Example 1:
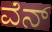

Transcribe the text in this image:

ವೆನ್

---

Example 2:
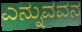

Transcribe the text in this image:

ಎನ್ನುವವನ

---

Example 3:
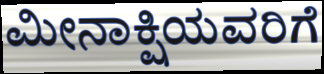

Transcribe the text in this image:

ಮೀನಾಕ್ಷಿಯವರಿಗೆ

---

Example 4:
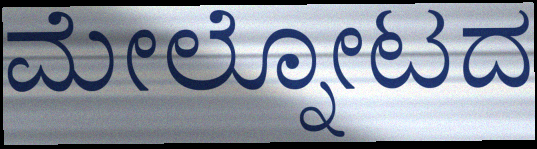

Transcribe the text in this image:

ಮೇಲ್ನೋಟದ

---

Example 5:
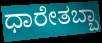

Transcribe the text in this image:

ಧಾರೇತಬ್ಬಾ